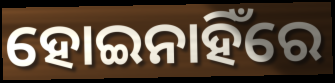
ହୋଇନାହିଁରେ